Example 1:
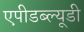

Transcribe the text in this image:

एपीडब्ल्यूडी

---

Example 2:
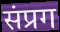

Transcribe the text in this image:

संप्रग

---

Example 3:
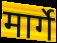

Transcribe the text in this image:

मार्गे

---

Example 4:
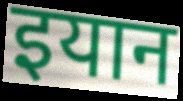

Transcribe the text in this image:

इयान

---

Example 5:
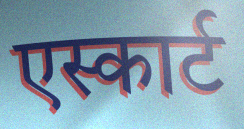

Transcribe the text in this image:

एस्कार्ट